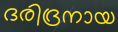
ദരിദ്രനായ